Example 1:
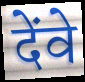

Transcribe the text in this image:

देंवे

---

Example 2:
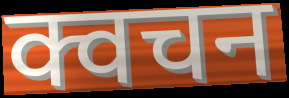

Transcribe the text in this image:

क्वचन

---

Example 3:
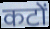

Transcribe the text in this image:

कटों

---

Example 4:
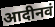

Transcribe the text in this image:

आदीनवं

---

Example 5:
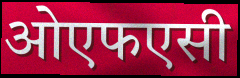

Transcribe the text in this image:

ओएफएसी